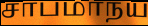
சாபமாநய